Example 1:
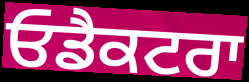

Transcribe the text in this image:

ਓਡੈਕਟਰਾ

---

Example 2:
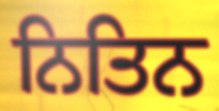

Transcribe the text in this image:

ਨਿਤਿਨ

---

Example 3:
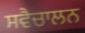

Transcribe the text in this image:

ਸਵੈਚਾਲਨ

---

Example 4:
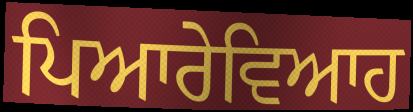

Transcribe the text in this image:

ਪਿਆਰੇਵਿਆਹ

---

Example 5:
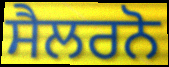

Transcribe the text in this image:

ਸੈਲਰਨੋ